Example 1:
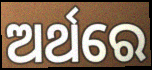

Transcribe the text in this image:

ଅର୍ଥରେ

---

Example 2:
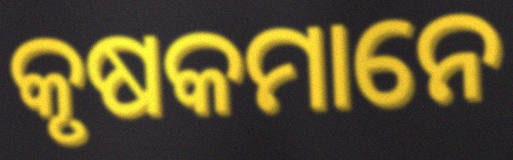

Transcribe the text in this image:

କୃଷକମାନେ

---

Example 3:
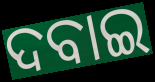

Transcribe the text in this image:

ଦବାଇ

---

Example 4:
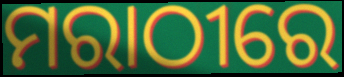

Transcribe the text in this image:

ମରାଠୀରେ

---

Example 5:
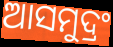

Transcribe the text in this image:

ଆସମୁଦ୍ରଂ